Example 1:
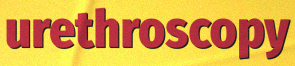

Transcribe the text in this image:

urethroscopy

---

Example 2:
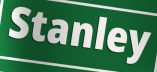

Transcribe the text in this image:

Stanley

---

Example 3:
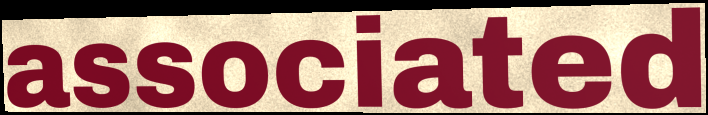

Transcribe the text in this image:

associated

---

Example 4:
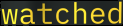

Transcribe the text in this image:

watched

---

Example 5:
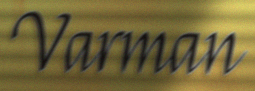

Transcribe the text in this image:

Varman